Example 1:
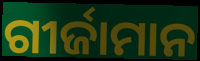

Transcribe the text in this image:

ଗୀର୍ଜାମାନ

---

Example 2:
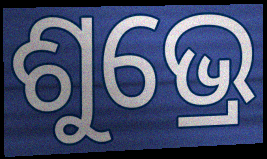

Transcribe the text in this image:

ଶୁଭ୍ରେ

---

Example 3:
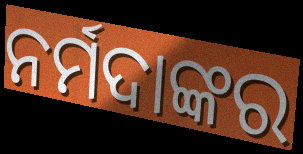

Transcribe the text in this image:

ନର୍ମଦାଙ୍କର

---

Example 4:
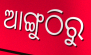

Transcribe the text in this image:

ଆଙ୍ଗୁଠିରୁ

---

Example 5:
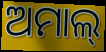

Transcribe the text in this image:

ଅମାଲ୍